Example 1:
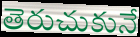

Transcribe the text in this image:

తెరుచుకునే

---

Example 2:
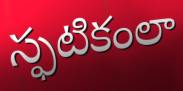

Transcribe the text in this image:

స్ఫటికంలా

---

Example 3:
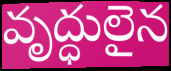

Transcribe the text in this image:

వృద్ధులైన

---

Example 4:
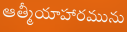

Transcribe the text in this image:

ఆత్మీయాహారమును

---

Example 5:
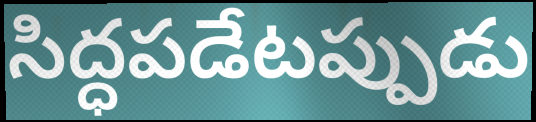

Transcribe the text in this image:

సిద్ధపడేటప్పుడు